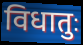
विधातुः